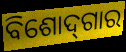
ବିଶୋଦ୍‌ଗାର